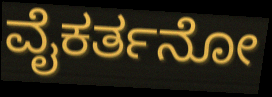
ವೈಕರ್ತನೋ